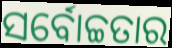
ସର୍ବୋଚ୍ଚତାର